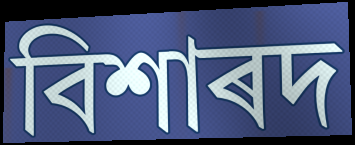
বিশাৰদ